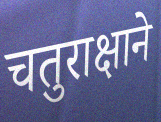
चतुराक्षाने